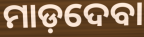
ମାଡ଼ଦେବା